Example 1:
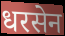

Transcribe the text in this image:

धरसेन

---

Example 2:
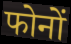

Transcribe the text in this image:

फोनों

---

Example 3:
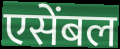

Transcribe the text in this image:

एसेंबल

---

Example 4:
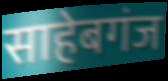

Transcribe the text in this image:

साहेबगंज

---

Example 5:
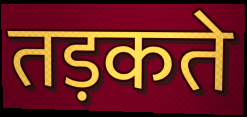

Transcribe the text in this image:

तड़कते